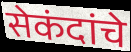
सेकंदांचे